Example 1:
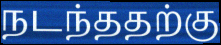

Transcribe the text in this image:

நடந்ததற்கு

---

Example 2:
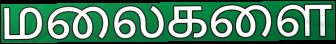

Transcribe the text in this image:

மலைகளை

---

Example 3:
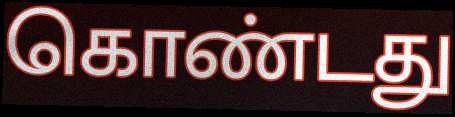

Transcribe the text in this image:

கொண்டது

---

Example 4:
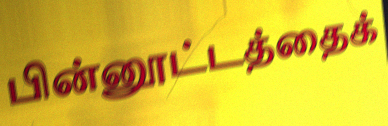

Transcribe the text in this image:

பின்னூட்டத்தைக்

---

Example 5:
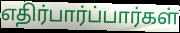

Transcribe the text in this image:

எதிர்பார்ப்பார்கள்